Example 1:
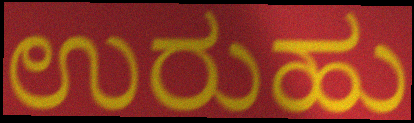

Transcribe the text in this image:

ಉರುಹು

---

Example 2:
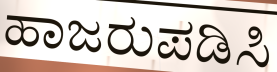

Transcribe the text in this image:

ಹಾಜರುಪಡಿಸಿ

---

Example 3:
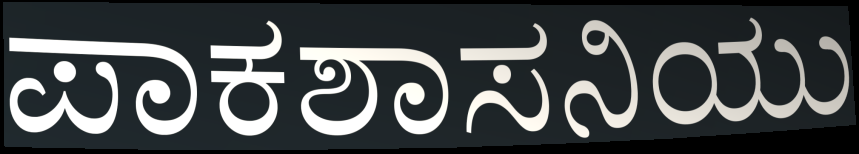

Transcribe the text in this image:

ಪಾಕಶಾಸನಿಯು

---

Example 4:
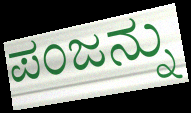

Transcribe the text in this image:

ಪಂಜನ್ನು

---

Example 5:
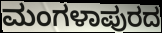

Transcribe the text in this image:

ಮಂಗಳಾಪುರದ